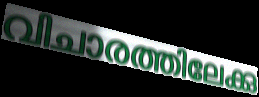
വിചാരത്തിലേക്കു